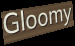
Gloomy